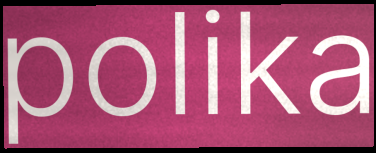
polika